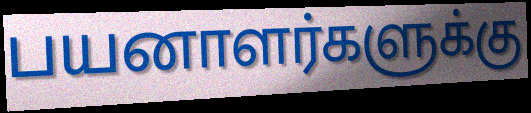
பயனாளர்களுக்கு